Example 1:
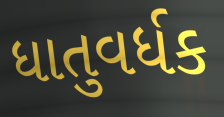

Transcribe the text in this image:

ધાતુવર્ધક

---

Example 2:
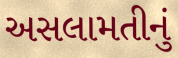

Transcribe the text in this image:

અસલામતીનું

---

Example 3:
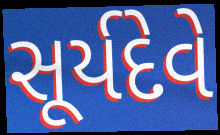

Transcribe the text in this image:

સૂર્યદેવે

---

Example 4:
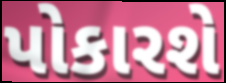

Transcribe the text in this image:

પોકારશે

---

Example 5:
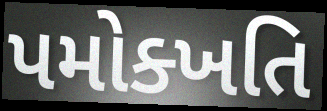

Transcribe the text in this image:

પમોક્ખતિ